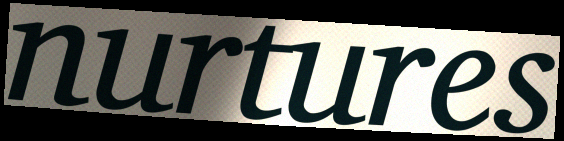
nurtures